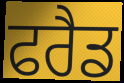
ਫਰੈਡ